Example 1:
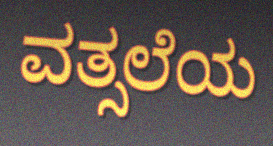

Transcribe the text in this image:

ವತ್ಸಲೆಯ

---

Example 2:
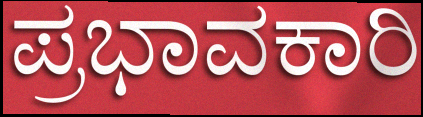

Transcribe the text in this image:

ಪ್ರಭಾವಕಾರಿ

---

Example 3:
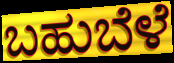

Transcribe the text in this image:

ಬಹುಬೆಳೆ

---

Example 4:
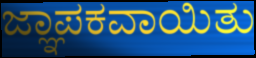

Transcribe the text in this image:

ಜ್ಞಾಪಕವಾಯಿತು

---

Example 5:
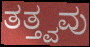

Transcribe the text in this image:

ತತ್ತ್ವವು